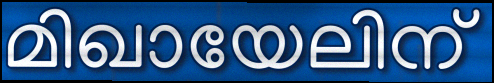
മിഖായേലിന്